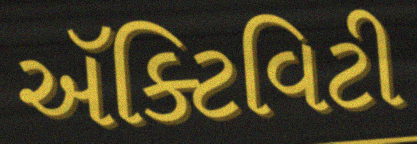
ઍક્ટિવિટી